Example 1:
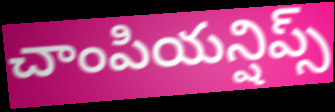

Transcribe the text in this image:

చాంపియన్షిప్స్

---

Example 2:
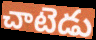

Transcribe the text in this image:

చాటెడు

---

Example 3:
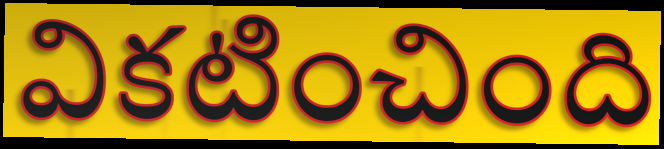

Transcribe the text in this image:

వికటించింది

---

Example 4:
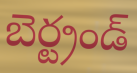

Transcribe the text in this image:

బెర్ట్రండ్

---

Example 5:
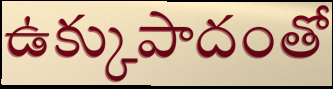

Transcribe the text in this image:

ఉక్కుపాదంతో